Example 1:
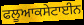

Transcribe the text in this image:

ਫਲੂਆਕਸੇਟਾਈਨ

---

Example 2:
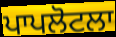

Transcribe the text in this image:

ਪਾਪਲੋਟਲਾ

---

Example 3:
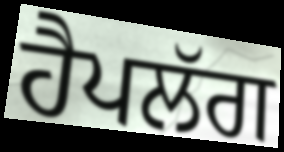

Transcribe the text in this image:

ਹੈਪਲੱਗ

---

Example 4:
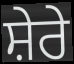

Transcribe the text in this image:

ਸ਼ੇਰੇ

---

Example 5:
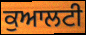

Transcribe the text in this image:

ਕੁਆਲਟੀ